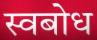
स्वबोध